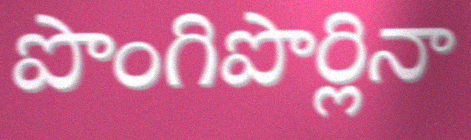
పొంగిపొర్లినా